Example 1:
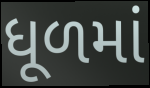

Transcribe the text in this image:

ધૂળમાં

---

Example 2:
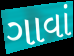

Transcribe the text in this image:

ગાવાં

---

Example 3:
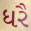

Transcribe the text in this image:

ધરૈ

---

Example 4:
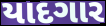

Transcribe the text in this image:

યાદગાર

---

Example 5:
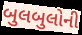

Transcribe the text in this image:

બુલબુલોની